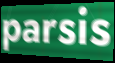
parsis